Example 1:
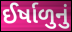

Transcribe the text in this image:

ઈર્ષાળુનું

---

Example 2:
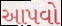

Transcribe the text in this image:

આપવો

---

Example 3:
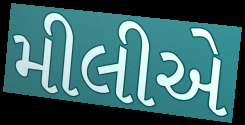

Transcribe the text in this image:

મીલીએ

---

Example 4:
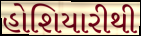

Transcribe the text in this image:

હોશિયારીથી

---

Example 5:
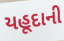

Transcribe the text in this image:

યહૂદાની